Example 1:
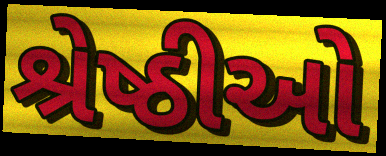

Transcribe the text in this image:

શ્રેષ્ઠીઓ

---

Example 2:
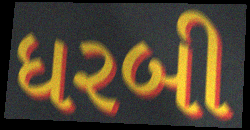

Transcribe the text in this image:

ધરબી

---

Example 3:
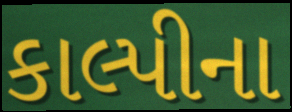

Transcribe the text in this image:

કાલ્પીના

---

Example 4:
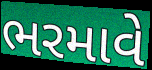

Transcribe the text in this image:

ભરમાવે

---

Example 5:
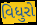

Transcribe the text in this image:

વિધુરો